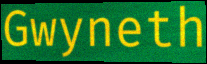
Gwyneth